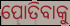
ପୋତିବାକୁ